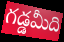
గడ్డమీది